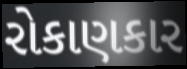
રોકાણકાર